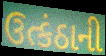
ઉત્કંઠાની